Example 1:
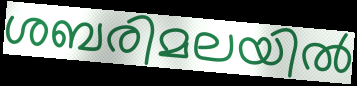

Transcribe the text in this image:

ശബരിമലയിൽ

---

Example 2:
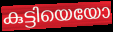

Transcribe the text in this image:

കുട്ടിയെയോ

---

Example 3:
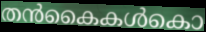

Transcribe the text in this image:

തൻകൈകൾകൊ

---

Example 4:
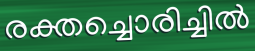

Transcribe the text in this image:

രക്തച്ചൊരിച്ചിൽ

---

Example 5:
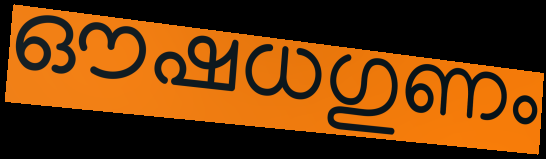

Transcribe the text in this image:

ഔഷധഗുണം